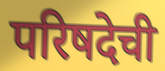
परिषदेची